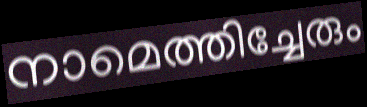
നാമെത്തിച്ചേരും